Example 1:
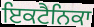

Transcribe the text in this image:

ਇਕਟੈਨਿਕਾ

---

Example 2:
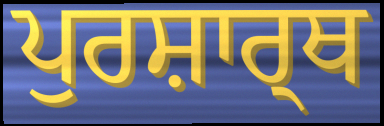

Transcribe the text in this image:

ਪੁਰਸ਼ਾਰ੍ਥ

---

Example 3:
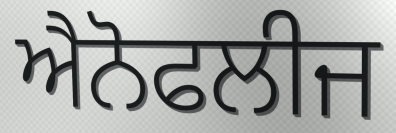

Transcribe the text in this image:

ਐਨੋਫਲੀਜ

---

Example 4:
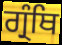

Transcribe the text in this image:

ਗ੍ਰੰਥਿ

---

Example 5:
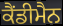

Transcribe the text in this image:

ਕੈਂਡੀਮੈਨ